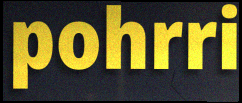
pohrri